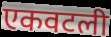
एकवटली